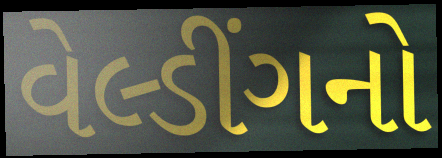
વેલ્ડીંગનો